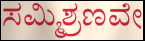
ಸಮ್ಮಿಶ್ರಣವೇ